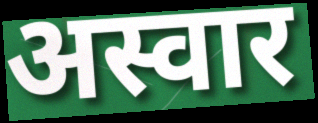
अस्वार